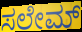
ಸಲೇಮ್